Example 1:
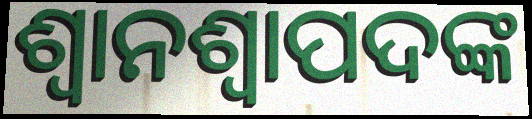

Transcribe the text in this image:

ଶ୍ୱାନଶ୍ୱାପଦଙ୍କ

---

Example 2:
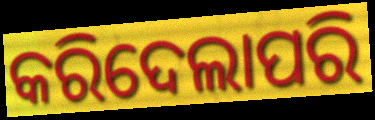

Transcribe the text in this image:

କରିଦେଲାପରି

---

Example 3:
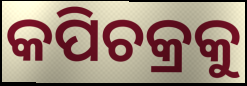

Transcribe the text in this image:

କପିଚକ୍ରକୁ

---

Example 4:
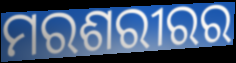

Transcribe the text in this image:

ମରଶରୀରର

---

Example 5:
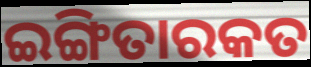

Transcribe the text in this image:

ଇଙ୍ଗିତାରକତ